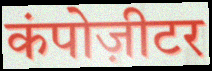
कंपोज़ीटर